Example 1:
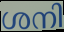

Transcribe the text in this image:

ശനി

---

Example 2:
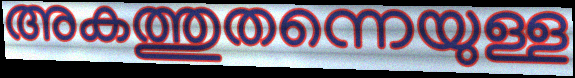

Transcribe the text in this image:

അകത്തുതന്നെയുള്ള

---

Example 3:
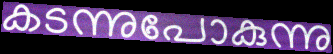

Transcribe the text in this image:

കടന്നുപോകുന്നു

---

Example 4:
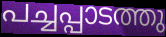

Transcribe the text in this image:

പച്ചപ്പാടത്തു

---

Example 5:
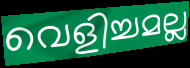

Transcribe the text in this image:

വെളിച്ചമല്ല